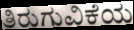
ತಿರುಗುವಿಕೆಯ